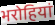
भरोहियां